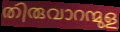
തിരുവാറന്മുള